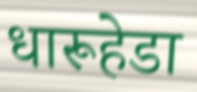
धारूहेडा